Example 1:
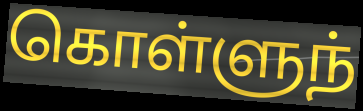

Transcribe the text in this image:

கொள்ளுந்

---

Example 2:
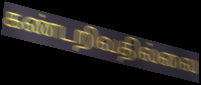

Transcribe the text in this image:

கண்டறிவதில்லை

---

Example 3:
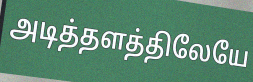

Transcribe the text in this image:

அடித்தளத்திலேயே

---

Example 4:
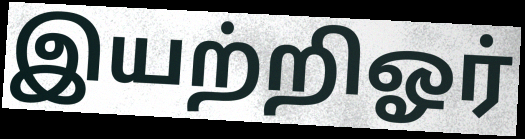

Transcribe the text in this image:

இயற்றிஓர்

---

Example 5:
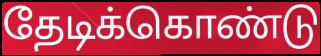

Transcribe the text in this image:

தேடிக்கொண்டு